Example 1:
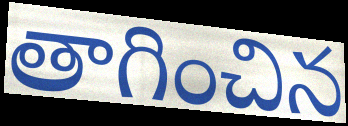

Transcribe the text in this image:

తాగించిన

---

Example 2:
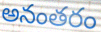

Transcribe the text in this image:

అనంతరం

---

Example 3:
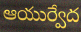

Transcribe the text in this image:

ఆయుర్వేద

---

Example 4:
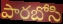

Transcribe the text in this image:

పారబోసి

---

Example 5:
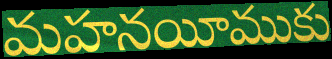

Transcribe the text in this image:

మహనయీముకు